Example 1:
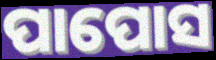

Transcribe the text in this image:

ପାପୋସ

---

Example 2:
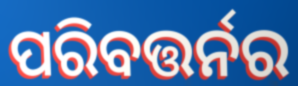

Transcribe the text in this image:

ପରିବତ୍ତର୍ନର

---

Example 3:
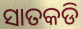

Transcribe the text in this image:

ସାତକଡି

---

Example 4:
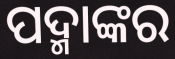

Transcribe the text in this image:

ପଦ୍ମାଙ୍କର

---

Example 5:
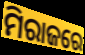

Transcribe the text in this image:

ମିରାଜରେ